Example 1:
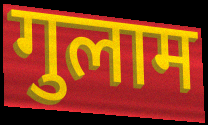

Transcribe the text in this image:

गुलाम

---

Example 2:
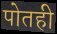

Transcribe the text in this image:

पोतही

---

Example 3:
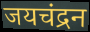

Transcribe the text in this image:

जयचंद्रन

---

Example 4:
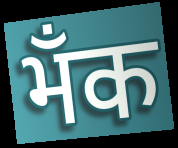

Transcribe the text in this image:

भँक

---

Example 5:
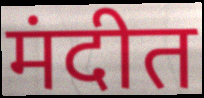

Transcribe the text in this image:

मंदीत